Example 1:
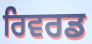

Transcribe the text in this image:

ਰਿਵਰਡ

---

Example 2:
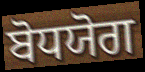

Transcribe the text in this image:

ਬੋਧਯੋਗ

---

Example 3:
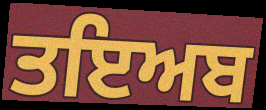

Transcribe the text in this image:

ਤਇਅਬ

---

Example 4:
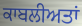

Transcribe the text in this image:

ਕਾਬਲੀਅਤਾਂ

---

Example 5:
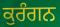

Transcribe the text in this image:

ਕੁਰੰਗਨ